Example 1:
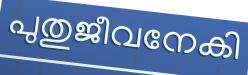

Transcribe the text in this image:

പുതുജീവനേകി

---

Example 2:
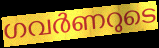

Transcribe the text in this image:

ഗവർണറുടെ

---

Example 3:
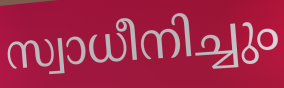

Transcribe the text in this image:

സ്വാധീനിച്ചും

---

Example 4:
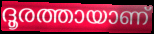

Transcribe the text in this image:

ദൂരത്തായാണ്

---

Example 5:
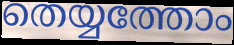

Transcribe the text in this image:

തെയ്യത്തോം